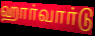
ஹார்வார்டு